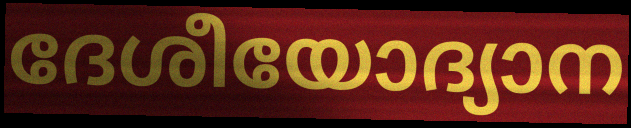
ദേശീയോദ്യാന